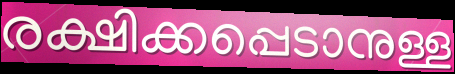
രക്ഷിക്കപ്പെടാനുള്ള